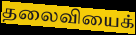
தலைவியைக்